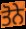
ਤੋਨੇ